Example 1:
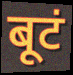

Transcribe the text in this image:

बूटं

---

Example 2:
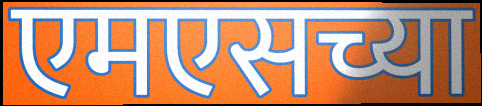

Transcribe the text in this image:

एमएसच्या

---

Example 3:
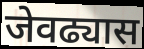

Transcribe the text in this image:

जेवढ्यास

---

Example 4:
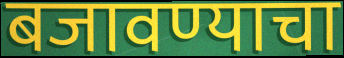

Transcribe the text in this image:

बजावण्याचा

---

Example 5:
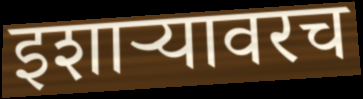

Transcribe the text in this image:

इशाऱ्यावरच